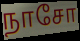
நாசோ